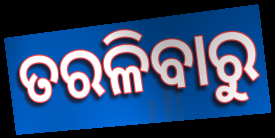
ତରଳିବାରୁ